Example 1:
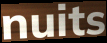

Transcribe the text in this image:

nuits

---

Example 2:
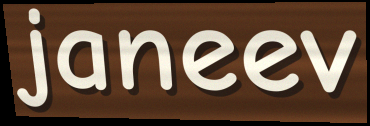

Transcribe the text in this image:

janeev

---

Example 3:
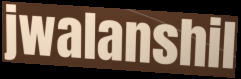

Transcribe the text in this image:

jwalanshil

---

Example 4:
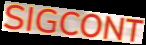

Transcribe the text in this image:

SIGCONT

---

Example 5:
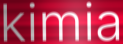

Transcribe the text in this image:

kimia